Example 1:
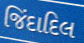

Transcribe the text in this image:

જિંદાદિલ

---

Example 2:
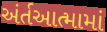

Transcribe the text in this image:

અંર્તઆત્મામાં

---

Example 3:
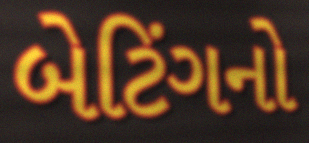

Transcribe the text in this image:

બેટિંગનો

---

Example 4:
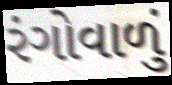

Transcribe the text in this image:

રંગોવાળું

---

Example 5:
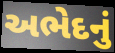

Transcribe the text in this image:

અભેદનું